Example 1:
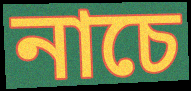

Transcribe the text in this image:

নাচে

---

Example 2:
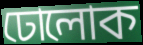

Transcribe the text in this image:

ঢোলোক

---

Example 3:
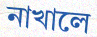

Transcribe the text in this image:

নাখালে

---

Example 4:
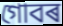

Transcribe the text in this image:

গোবৰ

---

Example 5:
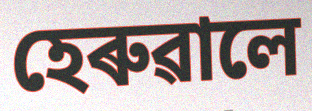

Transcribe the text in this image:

হেৰুৱালে